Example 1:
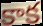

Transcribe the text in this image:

కాక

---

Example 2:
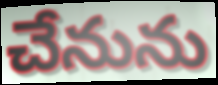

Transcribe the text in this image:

చేనును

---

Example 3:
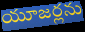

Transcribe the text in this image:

యూజర్లను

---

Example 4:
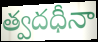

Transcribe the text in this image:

త్వదధీనా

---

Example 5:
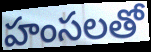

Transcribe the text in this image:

హంసలతో